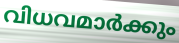
വിധവമാർക്കും